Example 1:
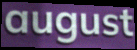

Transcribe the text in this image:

august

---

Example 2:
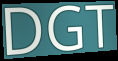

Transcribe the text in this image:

DGT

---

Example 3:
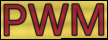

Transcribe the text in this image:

PWM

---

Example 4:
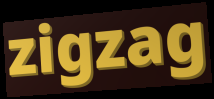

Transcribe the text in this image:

zigzag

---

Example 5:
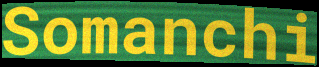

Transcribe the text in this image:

Somanchi